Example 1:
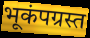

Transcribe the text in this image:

भूकंपग्रस्त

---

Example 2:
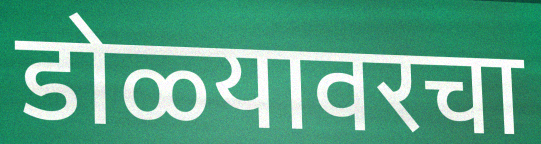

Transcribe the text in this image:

डोळ्यावरचा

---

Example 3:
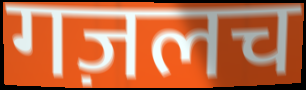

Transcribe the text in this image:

गज़लच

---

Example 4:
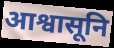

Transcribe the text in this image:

आश्वासूनि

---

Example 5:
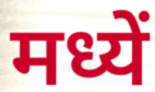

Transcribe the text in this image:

मध्यें